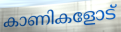
കാണികളോട്